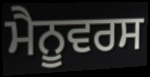
ਮੈਨੂਵਰਸ